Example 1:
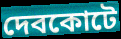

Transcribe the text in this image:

দেবকোটে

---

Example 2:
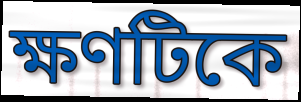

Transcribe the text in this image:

ক্ষণটিকে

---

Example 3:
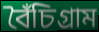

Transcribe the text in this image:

বৈঁচিগ্রাম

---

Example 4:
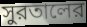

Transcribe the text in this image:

সুরতালের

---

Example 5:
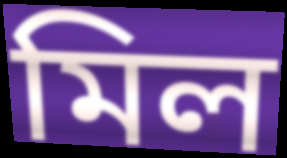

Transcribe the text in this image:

মিল